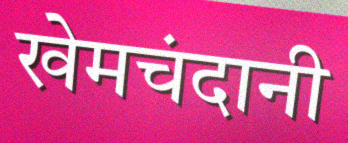
खेमचंदानी